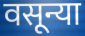
वसून्या